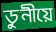
ডুনীয়ে